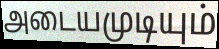
அடையமுடியும்